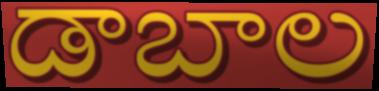
డాబాల